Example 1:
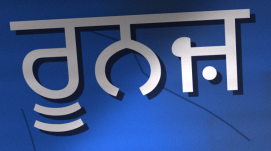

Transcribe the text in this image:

ਰੂਨਜ਼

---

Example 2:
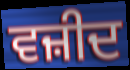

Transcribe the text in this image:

ਵਜ਼ੀਦ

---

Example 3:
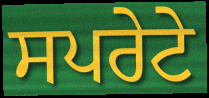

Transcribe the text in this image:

ਸਪਰੇਟੇ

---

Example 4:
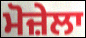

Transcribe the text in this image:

ਮੋਜ਼ੇਲਾ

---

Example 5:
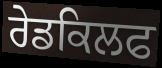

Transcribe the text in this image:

ਰੇਡਕਿਲਫ